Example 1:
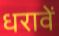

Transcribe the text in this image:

धरावें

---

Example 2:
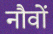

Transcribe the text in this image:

नौवों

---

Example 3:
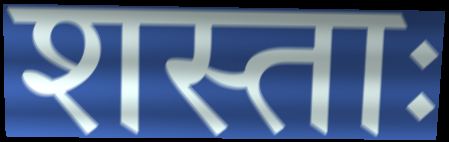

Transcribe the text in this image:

शस्ताः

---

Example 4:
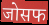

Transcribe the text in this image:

जोसफ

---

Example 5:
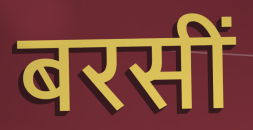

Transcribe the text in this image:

बरसीं